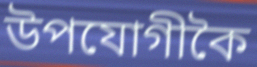
উপযোগীকৈ